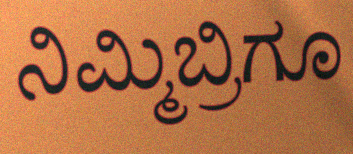
ನಿಮ್ಮಿಬ್ರಿಗೂ